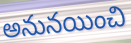
అనునయించి